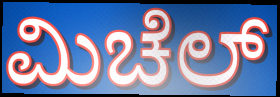
ಮಿಚೆಲ್